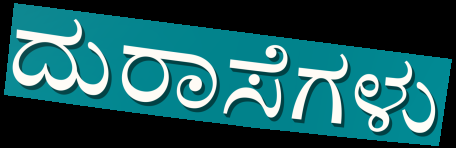
ದುರಾಸೆಗಳು